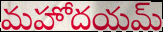
మహోదయమ్